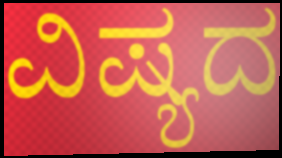
ವಿಷ್ಯದ